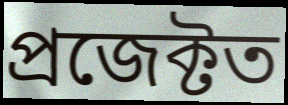
প্ৰজেক্টত